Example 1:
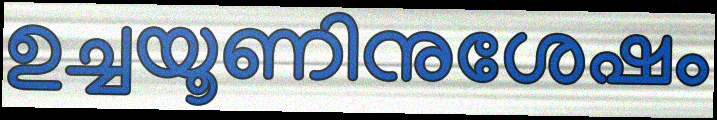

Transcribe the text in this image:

ഉച്ചയൂണിനുശേഷം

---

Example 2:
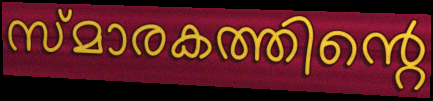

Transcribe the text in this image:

സ്മാരകത്തിന്റെ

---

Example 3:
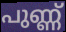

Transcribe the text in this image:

പുണ്ണ്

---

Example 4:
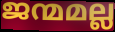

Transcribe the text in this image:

ജന്മമല്ല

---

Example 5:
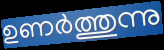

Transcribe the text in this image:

ഉണർത്തുന്നു